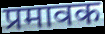
प्रमावक